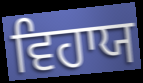
ਵਿਹਾਯ